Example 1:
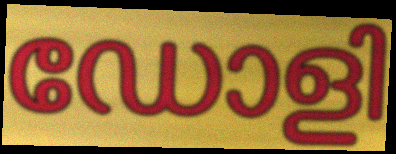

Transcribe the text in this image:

ഡോളി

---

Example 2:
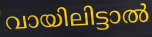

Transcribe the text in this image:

വായിലിട്ടാൽ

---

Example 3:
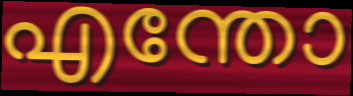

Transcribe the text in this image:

എന്തോ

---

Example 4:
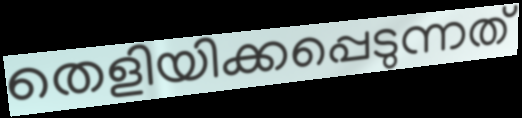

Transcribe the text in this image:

തെളിയിക്കപ്പെടുന്നത്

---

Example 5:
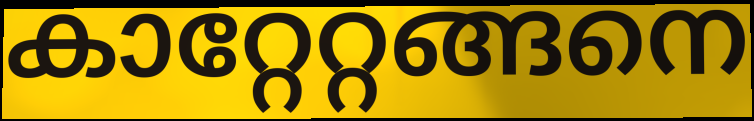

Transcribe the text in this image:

കാറ്റേറ്റങ്ങനെ